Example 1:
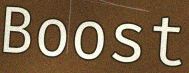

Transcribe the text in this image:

Boost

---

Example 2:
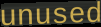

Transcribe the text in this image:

unused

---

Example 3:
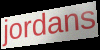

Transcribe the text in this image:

jordans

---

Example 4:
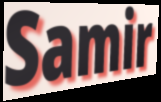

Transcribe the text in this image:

Samir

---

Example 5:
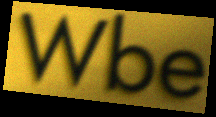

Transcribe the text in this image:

Wbe